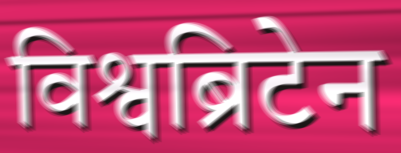
विश्वब्रिटेन